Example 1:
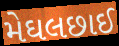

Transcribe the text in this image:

મેઘલછાઈ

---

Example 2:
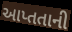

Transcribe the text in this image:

આપ્તતાની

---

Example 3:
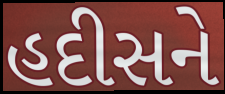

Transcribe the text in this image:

હદીસને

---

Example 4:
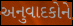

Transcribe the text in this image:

અનુવાદકોને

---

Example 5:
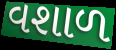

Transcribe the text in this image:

વશાળ